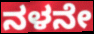
ನಳನೇ